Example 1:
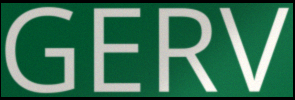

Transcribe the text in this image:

GERV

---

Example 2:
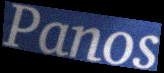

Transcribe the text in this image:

Panos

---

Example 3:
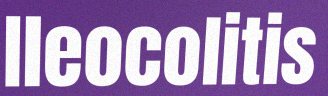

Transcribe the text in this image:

Ileocolitis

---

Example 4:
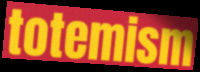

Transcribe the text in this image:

totemism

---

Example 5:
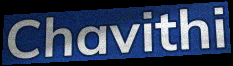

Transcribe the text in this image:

Chavithi